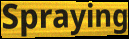
Spraying